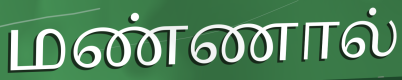
மண்ணால்